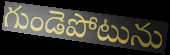
గుండెపోటును